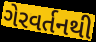
ગેરવર્તનથી